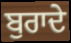
ਬੁਰਾਦੇ